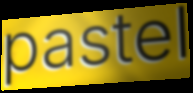
pastel